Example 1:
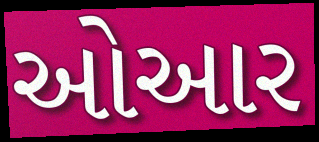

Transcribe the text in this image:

ઓઆર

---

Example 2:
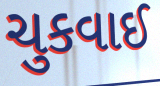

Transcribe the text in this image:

ચુકવાઈ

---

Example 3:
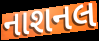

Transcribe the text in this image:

નાશનલ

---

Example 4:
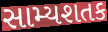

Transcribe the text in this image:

સામ્યશતક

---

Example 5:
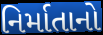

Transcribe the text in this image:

નિર્માતાનો